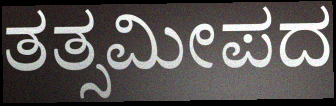
ತತ್ಸಮೀಪದ